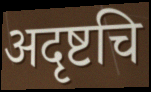
अदृष्टचि